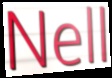
Nell